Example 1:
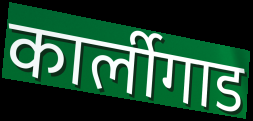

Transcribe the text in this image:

कार्लीगाड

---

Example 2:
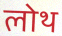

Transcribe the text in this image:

लोथ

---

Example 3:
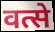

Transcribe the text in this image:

वत्से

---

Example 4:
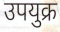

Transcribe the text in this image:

उपयुक्र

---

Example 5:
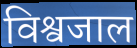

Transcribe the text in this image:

विश्वजाल